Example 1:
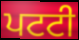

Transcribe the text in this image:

ਪਟਟੀ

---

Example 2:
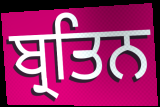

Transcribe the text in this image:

ਬ੍ਰਤਿਨ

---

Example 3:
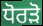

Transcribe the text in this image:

ਧੋਰੜੋ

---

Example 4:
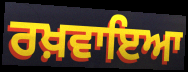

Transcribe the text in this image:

ਰਖ਼ਵਾਇਆ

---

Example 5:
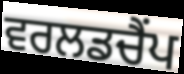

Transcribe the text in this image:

ਵਰਲਡਚੈਂਪ